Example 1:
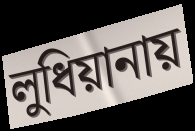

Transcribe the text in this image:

লুধিয়ানায়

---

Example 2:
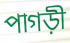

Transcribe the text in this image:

পাগড়ী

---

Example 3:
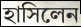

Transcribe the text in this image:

হাসিলেন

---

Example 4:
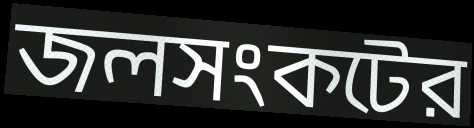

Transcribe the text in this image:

জলসংকটের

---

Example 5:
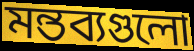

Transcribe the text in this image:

মন্তব্যগুলো